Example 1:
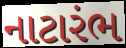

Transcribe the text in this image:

નાટારંભ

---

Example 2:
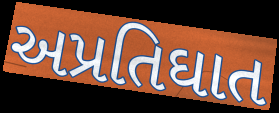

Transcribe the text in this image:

અપ્રતિઘાત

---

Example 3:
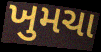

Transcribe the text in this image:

ખુમચા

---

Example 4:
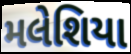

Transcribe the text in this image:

મલેશિયા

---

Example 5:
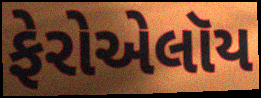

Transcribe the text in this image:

ફેરોએલૉય